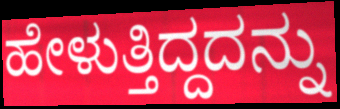
ಹೇಳುತ್ತಿದ್ದದನ್ನು